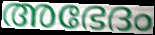
അഭേദം